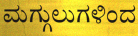
ಮಗ್ಗುಲುಗಳಿಂದ